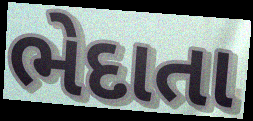
ભેદાતા